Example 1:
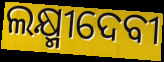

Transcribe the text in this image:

ଲକ୍ଷ୍ମୀଦେବୀ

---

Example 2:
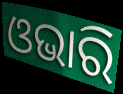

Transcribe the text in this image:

ଓଭାରି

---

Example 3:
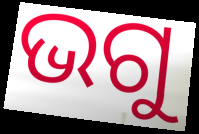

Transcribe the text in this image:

ଭଗୁ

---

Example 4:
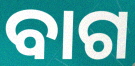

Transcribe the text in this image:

ବାଗ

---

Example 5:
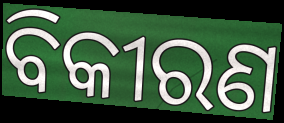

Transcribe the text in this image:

ବିକୀରଣ